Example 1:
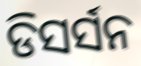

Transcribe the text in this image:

ଡିସର୍ସନ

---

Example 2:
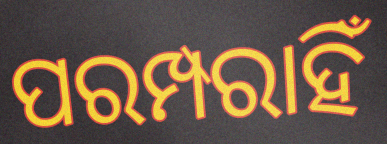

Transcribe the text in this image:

ପରମ୍ପରାହିଁ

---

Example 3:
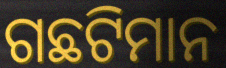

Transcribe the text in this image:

ଗଛଟିମାନ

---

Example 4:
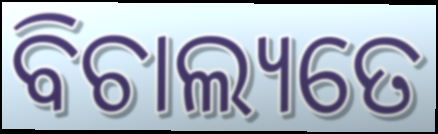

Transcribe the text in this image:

ବିଚାଲ୍ୟତେ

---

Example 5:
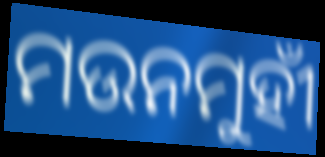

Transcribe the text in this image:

ମଉନମୁହୀଁ